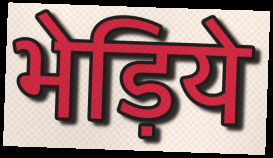
भेड़िये